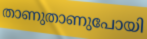
താണുതാണുപോയി